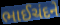
ભાઈચંદને